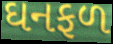
ઘનફળ